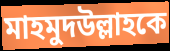
মাহমুদউল্লাহকে